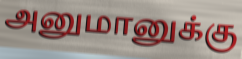
அனுமானுக்கு